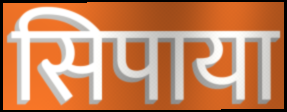
सिपाया